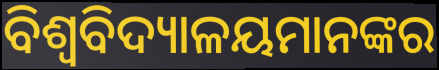
ବିଶ୍ଵବିଦ୍ୟାଳୟମାନଙ୍କର